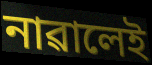
নাৱালেই